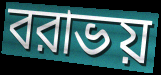
বরাভয়